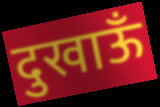
दुखाऊँ